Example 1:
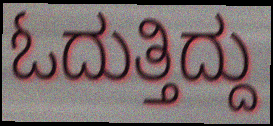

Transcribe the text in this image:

ಓದುತ್ತಿದ್ದು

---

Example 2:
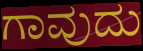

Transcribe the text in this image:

ಗಾವುದು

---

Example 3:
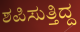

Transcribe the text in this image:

ಶಪಿಸುತ್ತಿದ್ದ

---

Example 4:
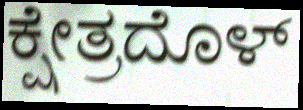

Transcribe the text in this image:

ಕ್ಷೇತ್ರದೊಳ್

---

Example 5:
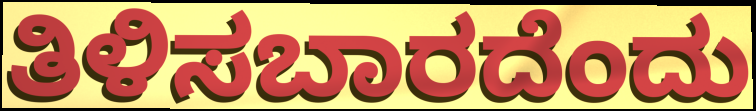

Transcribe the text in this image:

ತಿಳಿಸಬಾರದೆಂದು